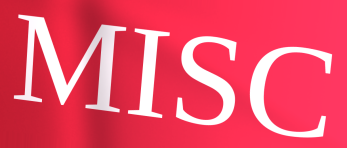
MISC